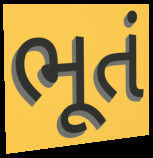
ભૂતં